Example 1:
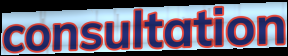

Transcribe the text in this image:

consultation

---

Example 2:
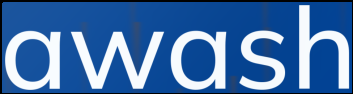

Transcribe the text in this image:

awash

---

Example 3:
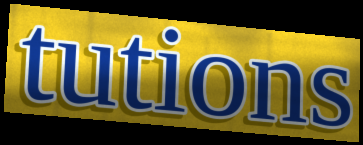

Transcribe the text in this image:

tutions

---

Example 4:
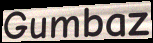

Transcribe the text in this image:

Gumbaz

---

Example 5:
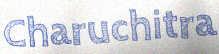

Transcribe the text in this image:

Charuchitra